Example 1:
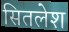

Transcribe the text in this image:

सितलेश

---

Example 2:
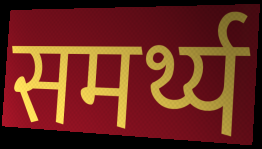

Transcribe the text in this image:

समर्थ्य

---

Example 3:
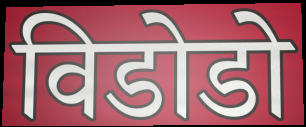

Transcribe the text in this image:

विडोडो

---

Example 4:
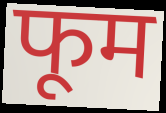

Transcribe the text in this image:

फूम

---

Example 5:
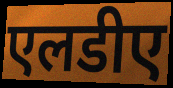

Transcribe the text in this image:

एलडीए